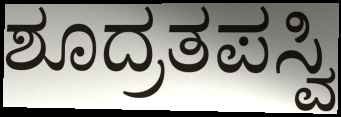
ಶೂದ್ರತಪಸ್ವಿ